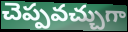
చెప్పవచ్చుగా